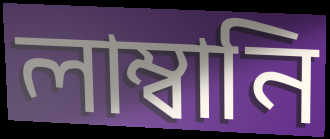
লাম্বানি